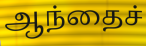
ஆந்தைச்